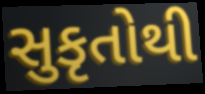
સુકૃતોથી